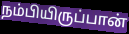
நம்பியிருப்பான்